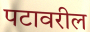
पटावरील